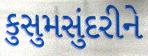
કુસુમસુંદરીને